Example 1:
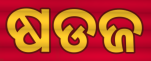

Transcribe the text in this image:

ଷଡଜ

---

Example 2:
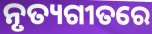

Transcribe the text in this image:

ନୃତ୍ୟଗୀତରେ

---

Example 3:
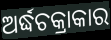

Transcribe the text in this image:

ଅର୍ଦ୍ଧଚକ୍ରାକାର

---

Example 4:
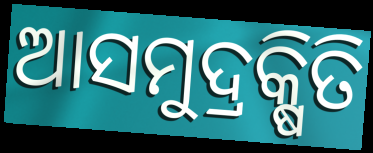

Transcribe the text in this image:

ଆସମୁଦ୍ରକ୍ଷିତି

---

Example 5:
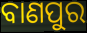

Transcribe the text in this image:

ବାଣପୁର